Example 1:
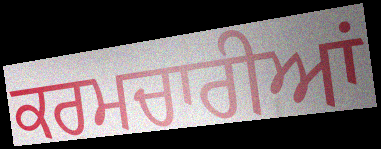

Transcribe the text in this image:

ਕਰਮਚਾਰੀਆਂ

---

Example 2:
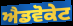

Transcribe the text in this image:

ਐਡਵੋਕੇਟ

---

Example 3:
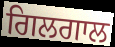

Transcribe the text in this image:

ਗਿਲਗਾਲ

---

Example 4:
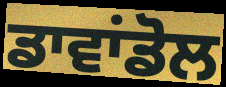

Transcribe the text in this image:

ਡਾਵਾਂਡੋਲ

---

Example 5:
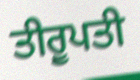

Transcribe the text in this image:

ਤੀਰੂਪਤੀ